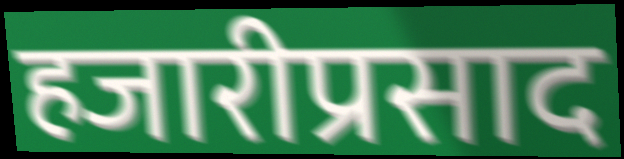
हजारीप्रसाद